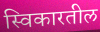
स्विकारतील